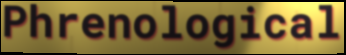
Phrenological